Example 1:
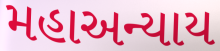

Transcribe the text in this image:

મહાઅન્યાય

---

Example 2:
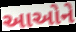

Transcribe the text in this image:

આઓને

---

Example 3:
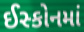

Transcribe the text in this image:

ઈસ્કોનમાં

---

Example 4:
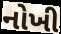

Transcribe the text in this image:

નોખી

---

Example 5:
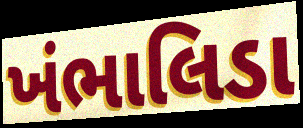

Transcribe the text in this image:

ખંભાલિડા